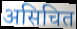
असिचित